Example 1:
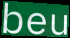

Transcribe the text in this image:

beu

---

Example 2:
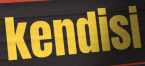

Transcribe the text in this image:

kendisi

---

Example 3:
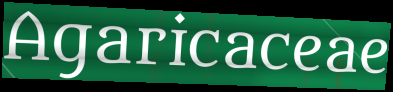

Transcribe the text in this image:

Agaricaceae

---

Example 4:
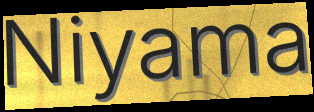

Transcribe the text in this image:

Niyama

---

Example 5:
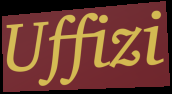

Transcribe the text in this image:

Uffizi